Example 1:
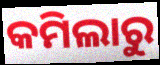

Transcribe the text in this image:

କମିଲାରୁ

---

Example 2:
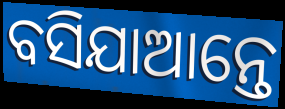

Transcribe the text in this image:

ବସିଯାଆନ୍ତେ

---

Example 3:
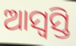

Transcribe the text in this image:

ଆସ୍ୱସ୍ତି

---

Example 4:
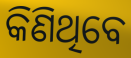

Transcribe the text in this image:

କିଣିଥିବେ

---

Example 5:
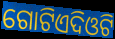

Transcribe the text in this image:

ଗୋଟିଏଦିଓଟି